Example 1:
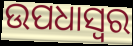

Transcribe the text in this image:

ଉପଧାସ୍ୱର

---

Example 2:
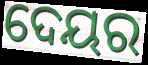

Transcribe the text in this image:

ଦେୟର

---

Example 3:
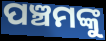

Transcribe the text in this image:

ପଞ୍ଚମଙ୍କୁ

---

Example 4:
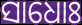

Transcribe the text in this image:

ସାଧୋଃ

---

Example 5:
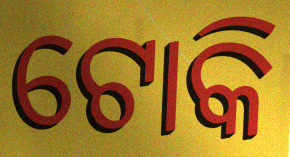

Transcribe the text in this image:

ଟୋକି